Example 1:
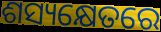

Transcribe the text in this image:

ଶସ୍ୟକ୍ଷେତରେ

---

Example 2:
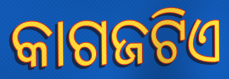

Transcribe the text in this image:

କାଗଜଟିଏ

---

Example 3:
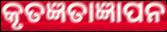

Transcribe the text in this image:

କୃତଜ୍ଞତାଜ୍ଞାପନ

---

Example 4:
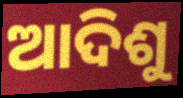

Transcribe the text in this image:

ଆଦିଶୁ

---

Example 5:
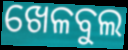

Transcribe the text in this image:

ଖେଳବୁଲ